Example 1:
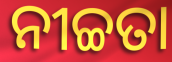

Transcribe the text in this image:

ନୀଚ୍ଚତା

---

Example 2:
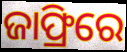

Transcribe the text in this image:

ଜାଫ୍ରିରେ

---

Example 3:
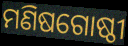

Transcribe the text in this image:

ମଣିଷଗୋଷ୍ଠୀ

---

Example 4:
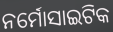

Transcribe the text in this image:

ନର୍ମୋସାଇଟିକ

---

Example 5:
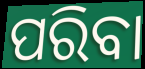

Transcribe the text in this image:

ପରିବା